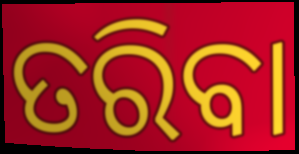
ତରିବା